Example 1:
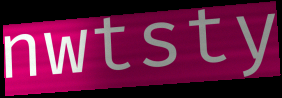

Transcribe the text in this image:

nwtsty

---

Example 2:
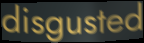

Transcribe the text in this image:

disgusted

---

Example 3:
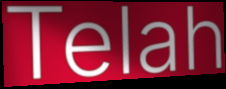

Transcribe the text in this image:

Telah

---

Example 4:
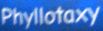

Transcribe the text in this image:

Phyllotaxy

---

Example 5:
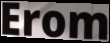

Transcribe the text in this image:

Erom